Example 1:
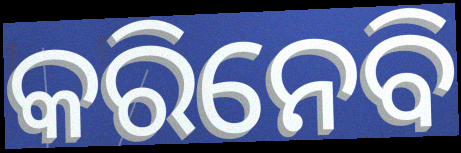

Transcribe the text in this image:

କରିନେବି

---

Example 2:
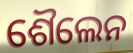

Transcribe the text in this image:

ଶୈଲେନ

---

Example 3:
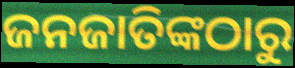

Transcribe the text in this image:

ଜନଜାତିଙ୍କଠାରୁ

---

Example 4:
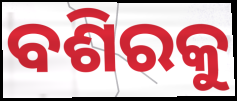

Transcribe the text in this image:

ବଶିରକୁ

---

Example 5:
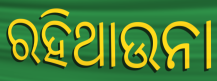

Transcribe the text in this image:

ରହିଥାଉନା